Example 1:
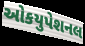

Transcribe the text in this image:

ઓકયુપેશનલ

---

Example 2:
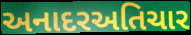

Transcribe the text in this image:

અનાદરઅતિચાર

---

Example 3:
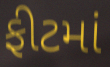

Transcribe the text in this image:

ફીટમાં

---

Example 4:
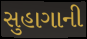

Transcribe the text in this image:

સુહાગાની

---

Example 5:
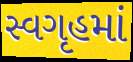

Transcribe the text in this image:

સ્વગૃહમાં